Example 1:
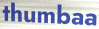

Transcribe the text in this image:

thumbaa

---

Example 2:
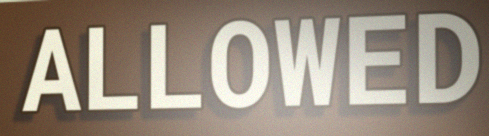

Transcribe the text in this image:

ALLOWED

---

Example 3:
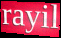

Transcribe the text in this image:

rayil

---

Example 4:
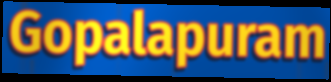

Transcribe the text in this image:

Gopalapuram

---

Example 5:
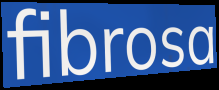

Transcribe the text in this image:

fibrosa